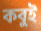
কবুই